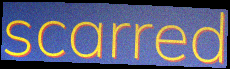
scarred